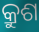
କ୍ରୁଶ